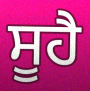
ਸੂਹੈ